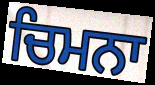
ਚਿਮਨਾ